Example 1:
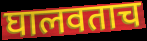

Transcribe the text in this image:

घालवताच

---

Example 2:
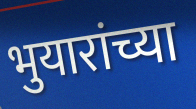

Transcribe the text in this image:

भुयारांच्या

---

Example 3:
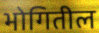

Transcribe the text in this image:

भोगितील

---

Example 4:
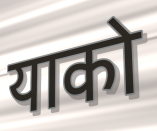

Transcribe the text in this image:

याको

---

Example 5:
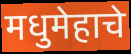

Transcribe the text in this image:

मधुमेहाचे